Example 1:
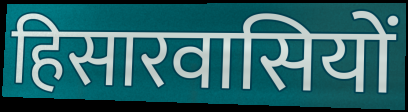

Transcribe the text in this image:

हिसारवासियों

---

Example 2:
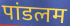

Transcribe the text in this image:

पांडलम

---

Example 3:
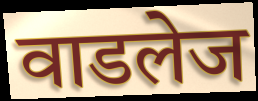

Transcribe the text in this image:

वाडलेज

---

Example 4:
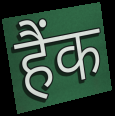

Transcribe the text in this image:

हैंक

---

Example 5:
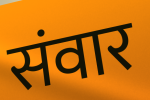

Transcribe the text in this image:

संवार